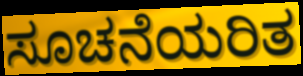
ಸೂಚನೆಯರಿತ